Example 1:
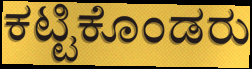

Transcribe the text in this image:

ಕಟ್ಟಿಕೊಂಡರು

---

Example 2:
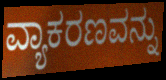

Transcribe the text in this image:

ವ್ಯಾಕರಣವನ್ನು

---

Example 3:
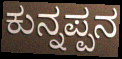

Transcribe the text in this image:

ಕುನ್ನಪ್ಪನ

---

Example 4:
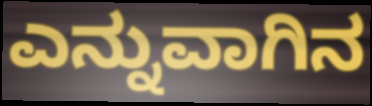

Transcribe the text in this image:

ಎನ್ನುವಾಗಿನ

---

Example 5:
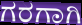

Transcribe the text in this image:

ಗರಗಾಗಿ